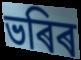
ভৰিৰ